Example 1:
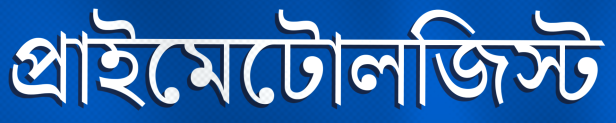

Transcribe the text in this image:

প্রাইমেটোলজিস্ট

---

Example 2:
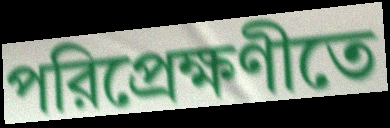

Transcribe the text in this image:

পরিপ্রেক্ষণীতে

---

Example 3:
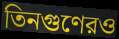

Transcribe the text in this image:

তিনগুণেরও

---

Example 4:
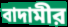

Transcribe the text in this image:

বাদামীর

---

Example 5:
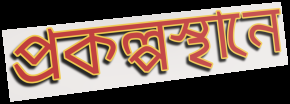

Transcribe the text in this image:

প্রকল্পস্থানে